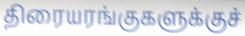
திரையரங்குகளுக்குச்